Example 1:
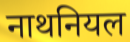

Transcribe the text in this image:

नाथनियल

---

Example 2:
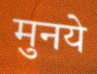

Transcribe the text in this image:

मुनये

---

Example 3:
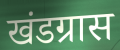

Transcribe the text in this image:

खंडग्रास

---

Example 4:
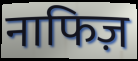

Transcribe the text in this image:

नाफिज़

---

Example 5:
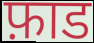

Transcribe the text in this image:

फ़ाड